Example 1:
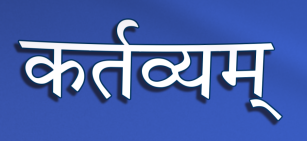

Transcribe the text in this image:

कर्तव्यम्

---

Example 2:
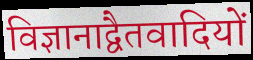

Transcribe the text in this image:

विज्ञानाद्वैतवादियों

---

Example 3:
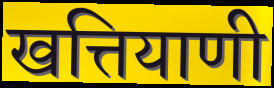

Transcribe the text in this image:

खत्तियाणी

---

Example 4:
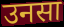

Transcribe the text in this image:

उनसा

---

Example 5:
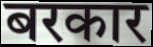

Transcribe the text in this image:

बरकार